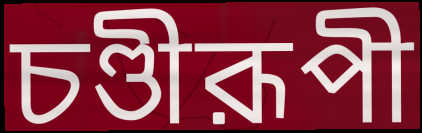
চণ্ডীরূপী